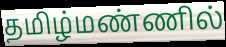
தமிழ்மண்ணில்